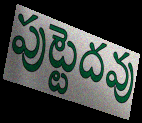
పుట్టెదవు